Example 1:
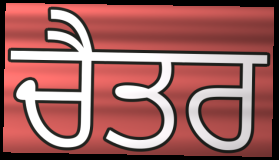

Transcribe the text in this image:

ਚੈਤਰ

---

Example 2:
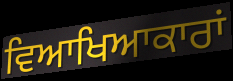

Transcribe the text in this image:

ਵਿਆਖਿਆਕਾਰਾਂ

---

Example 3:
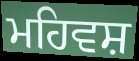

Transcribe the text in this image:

ਮਹਿਵਸ਼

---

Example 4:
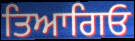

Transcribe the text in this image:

ਤਿਆਗਿਓ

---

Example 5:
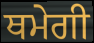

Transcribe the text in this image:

ਥਮੇਗੀ